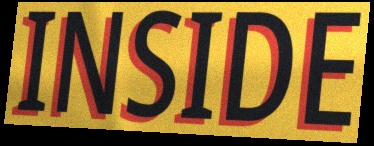
INSIDE